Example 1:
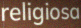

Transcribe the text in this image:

religiosa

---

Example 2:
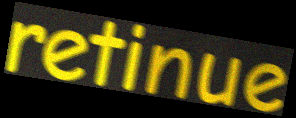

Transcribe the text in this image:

retinue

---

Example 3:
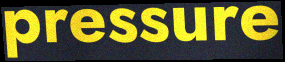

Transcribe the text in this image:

pressure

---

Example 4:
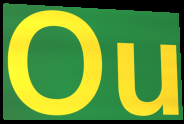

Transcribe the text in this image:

Ou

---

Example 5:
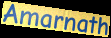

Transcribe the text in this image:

Amarnath